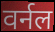
वर्नल